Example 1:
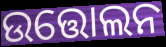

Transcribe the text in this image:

ଉତ୍ତୋଲନ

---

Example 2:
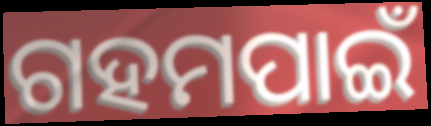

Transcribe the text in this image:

ଗହମପାଇଁ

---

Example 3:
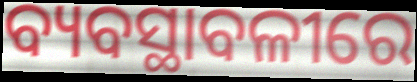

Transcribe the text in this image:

ବ୍ୟବସ୍ଥାବଳୀରେ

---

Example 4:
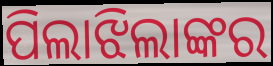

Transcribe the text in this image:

ପିଲାଝିଲାଙ୍କର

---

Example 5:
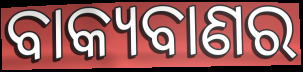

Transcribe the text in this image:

ବାକ୍ୟବାଣର